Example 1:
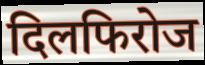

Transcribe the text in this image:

दिलफिरोज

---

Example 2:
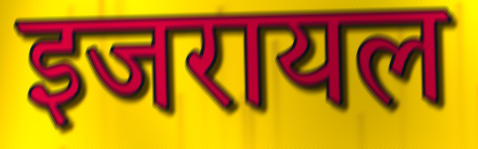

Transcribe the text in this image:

इजरायल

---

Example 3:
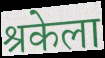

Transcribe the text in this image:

श्रकेला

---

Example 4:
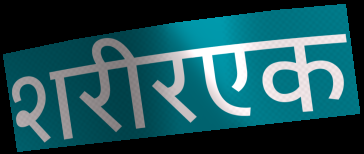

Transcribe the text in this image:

शरीरएक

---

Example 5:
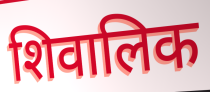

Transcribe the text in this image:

शिवालिक